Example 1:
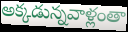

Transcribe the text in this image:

అక్కడున్నవాళ్లంతా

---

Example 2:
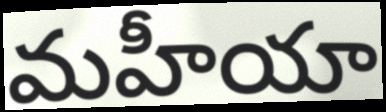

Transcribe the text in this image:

మహీయా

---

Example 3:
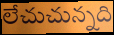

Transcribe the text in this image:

లేచుచున్నది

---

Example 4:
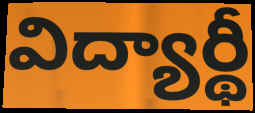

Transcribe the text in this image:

విద్యార్థీ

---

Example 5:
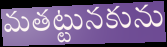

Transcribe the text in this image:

మతట్టునకును